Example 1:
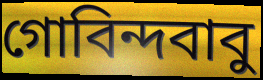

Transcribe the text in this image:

গোবিন্দবাবু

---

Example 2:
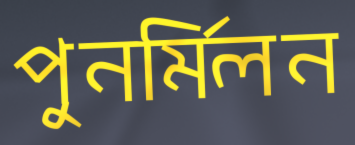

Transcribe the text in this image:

পুনর্মিলন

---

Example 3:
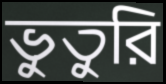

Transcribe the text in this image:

ভুতুরি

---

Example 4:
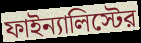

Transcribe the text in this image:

ফাইন্যালিস্টের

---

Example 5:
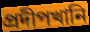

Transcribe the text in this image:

প্রদীপখানি